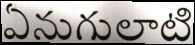
ఏనుగులాటి